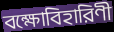
বক্ষোবিহারিণী